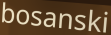
bosanski